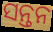
ସନ୍ତନ